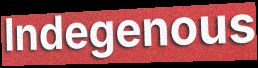
Indegenous